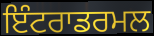
ਇੰਟਰਾਡਰਮਲ